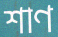
শাণ